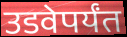
उडवेपर्यंत